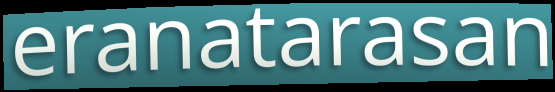
eranatarasan